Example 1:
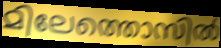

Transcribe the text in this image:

മിലേത്തൊസിൽ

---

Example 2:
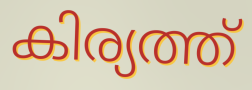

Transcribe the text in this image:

കിര്യത്ത്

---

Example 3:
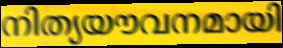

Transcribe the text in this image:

നിത്യയൗവനമായി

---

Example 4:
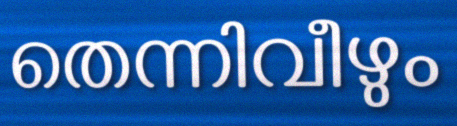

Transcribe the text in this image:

തെന്നിവീഴും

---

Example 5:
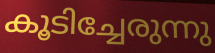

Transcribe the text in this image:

കൂടിച്ചേരുന്നു